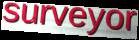
surveyor